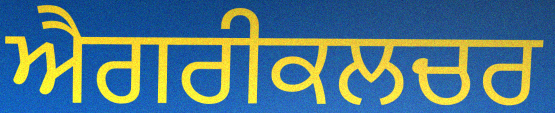
ਐਗਰੀਕਲਚਰ